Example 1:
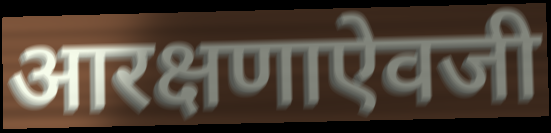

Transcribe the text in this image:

आरक्षणाऐवजी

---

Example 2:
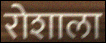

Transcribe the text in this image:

रोशाला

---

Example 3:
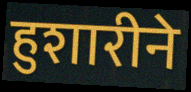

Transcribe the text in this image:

हुशारीने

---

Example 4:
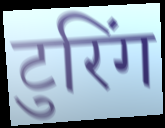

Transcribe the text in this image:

टुरिंग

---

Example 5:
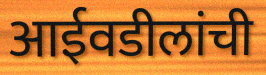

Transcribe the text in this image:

आईवडीलांची